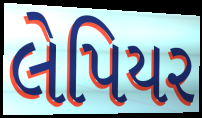
લેપિયર